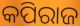
କପିରାଜ